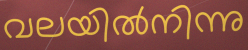
വലയിൽനിന്നു